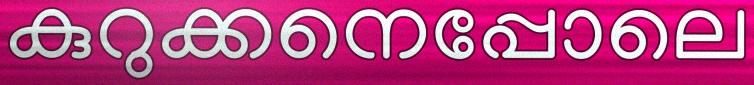
കുറുക്കനെപ്പോലെ